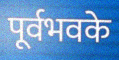
पूर्वभवके